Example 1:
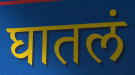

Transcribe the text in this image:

घातलं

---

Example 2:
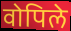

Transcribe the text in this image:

वोपिले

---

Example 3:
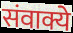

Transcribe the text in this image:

संवाक्ये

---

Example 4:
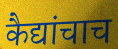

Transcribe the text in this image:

कैद्यांचाच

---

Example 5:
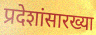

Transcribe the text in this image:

प्रदेशांसारख्या